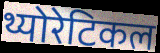
थ्योरेटिकल